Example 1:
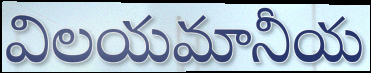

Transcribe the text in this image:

విలయమానీయ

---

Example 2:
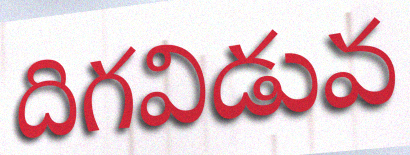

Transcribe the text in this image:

దిగవిడువ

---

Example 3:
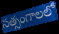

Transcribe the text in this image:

సత్సంగాలలో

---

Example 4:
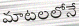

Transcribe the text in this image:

మాటలలోనే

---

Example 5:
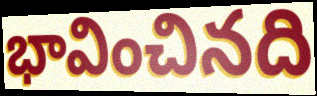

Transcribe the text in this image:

భావించినది